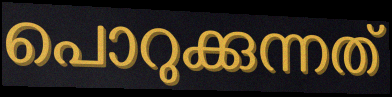
പൊറുക്കുന്നത്